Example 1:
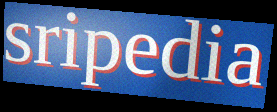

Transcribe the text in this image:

sripedia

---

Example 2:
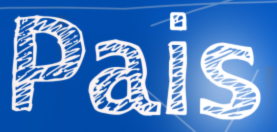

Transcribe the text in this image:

Pais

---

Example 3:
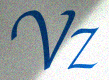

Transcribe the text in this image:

Vz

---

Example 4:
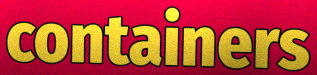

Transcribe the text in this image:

containers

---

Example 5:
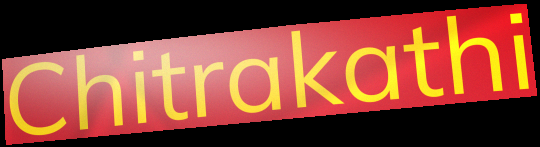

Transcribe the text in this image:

Chitrakathi